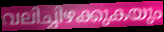
വലിച്ചിഴക്കുകയും